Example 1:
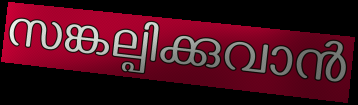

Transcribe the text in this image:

സങ്കല്പിക്കുവാൻ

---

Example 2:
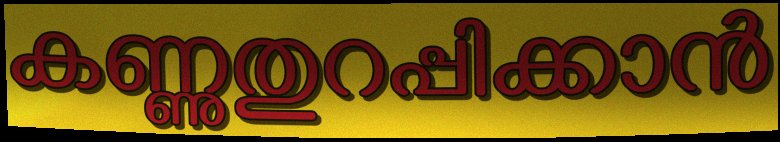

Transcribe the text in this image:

കണ്ണുതുറപ്പിക്കാൻ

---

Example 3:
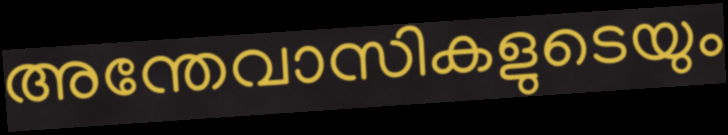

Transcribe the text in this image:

അന്തേവാസികളുടെയും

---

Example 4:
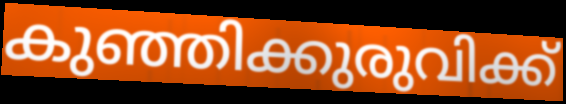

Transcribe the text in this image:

കുഞ്ഞിക്കുരുവിക്ക്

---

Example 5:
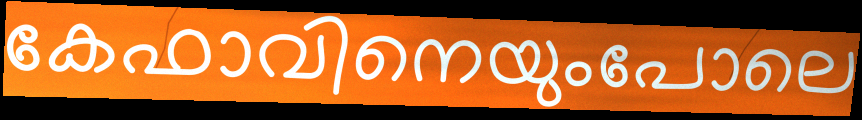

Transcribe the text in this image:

കേഫാവിനെയുംപോലെ